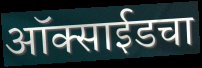
ऑक्साईडचा